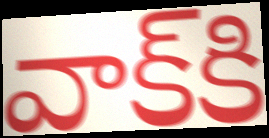
వాక్‌కి